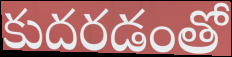
కుదరడంతో